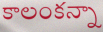
కాలంకన్నా